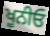
ਖੂਨੀਓ